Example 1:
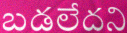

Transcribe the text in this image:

బడలేదని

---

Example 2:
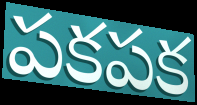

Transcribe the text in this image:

పకపక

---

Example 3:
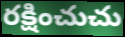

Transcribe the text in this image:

రక్షించుచు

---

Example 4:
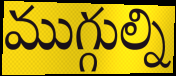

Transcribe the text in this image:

ముగ్గుల్ని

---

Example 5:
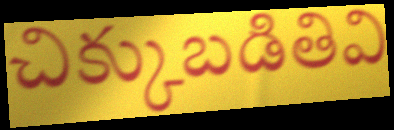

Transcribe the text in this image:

చిక్కుబడితివి